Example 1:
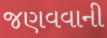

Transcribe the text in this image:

જણવવાની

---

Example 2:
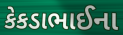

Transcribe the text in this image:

કેકડાભાઈના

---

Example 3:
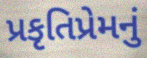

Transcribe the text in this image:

પ્રકૃતિપ્રેમનું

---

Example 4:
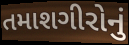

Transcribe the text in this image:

તમાશગીરોનું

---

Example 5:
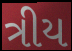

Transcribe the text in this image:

ત્રીય